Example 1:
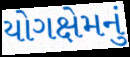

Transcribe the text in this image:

યોગક્ષેમનું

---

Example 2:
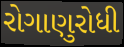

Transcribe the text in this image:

રોગાણુરોધી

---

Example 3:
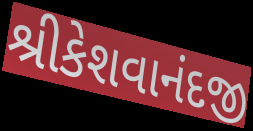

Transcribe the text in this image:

શ્રીકેશવાનંદજી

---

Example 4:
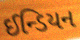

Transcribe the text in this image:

ઈન્ડિયન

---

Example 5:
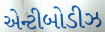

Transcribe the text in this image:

એન્ટીબોડીઝ